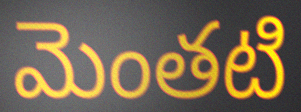
మెంతటి